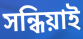
সন্ধিয়াই